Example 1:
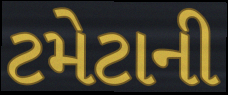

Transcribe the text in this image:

ટમેટાની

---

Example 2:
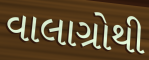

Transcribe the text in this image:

વાલાગ્રોથી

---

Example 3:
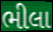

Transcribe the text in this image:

ભીલા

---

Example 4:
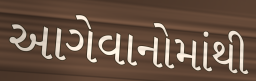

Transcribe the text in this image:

આગેવાનોમાંથી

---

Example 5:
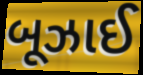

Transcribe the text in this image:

બૂઝાઈ